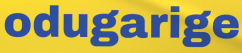
odugarige